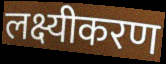
लक्ष्यीकरण